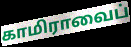
காமிராவைப்